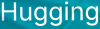
Hugging